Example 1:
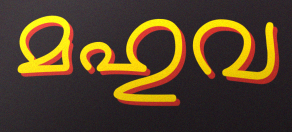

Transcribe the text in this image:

മഹുവ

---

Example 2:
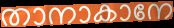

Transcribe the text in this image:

താനാകാനേ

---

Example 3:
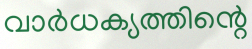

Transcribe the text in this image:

വാർധക്യത്തിന്റെ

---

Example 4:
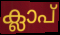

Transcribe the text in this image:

ക്ലാപ്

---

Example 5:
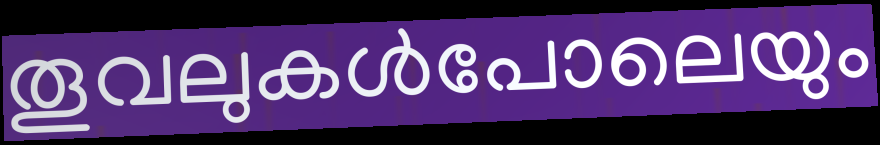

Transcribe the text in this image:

തൂവലുകൾപോലെയും